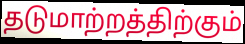
தடுமாற்றத்திற்கும்